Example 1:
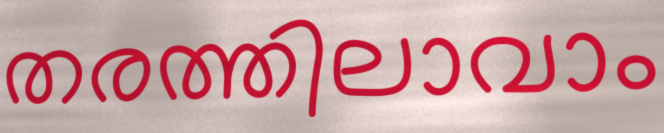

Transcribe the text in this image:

തരത്തിലാവാം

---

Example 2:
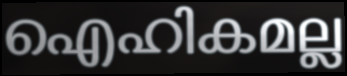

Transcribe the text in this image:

ഐഹികമല്ല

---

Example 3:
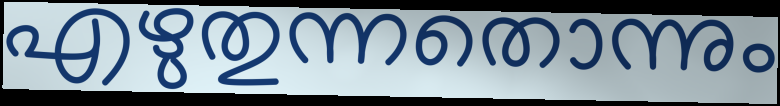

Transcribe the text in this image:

എഴുതുന്നതൊന്നും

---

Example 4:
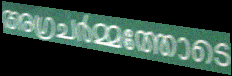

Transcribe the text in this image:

അഗ്രചർമ്മത്തോടെ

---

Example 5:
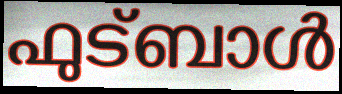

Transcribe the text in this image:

ഫുട്ബാൾ